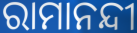
ରାମାନନ୍ଦୀ